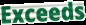
Exceeds